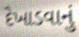
દેખાડવાનું